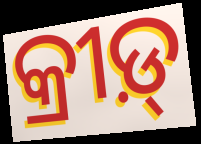
କ୍ରୀଡ଼୍